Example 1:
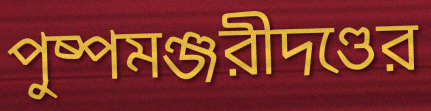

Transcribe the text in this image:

পুষ্পমঞ্জরীদণ্ডের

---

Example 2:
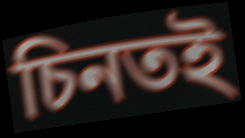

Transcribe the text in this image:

চিনতই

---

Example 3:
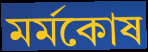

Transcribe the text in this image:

মর্মকোষ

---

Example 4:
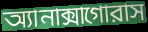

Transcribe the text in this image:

অ্যানাক্সাগোরাস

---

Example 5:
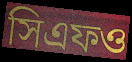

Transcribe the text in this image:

সিএফও